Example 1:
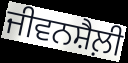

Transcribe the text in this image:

ਜੀਵਨਸ਼ੈਲ਼ੀ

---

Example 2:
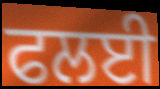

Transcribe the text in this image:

ਫਲਈ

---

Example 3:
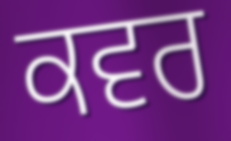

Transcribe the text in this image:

ਕਵਰ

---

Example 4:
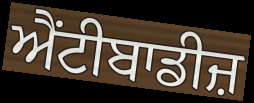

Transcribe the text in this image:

ਐਂਟੀਬਾਡੀਜ਼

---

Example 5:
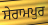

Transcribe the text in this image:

ਸੇਰਾਮਪੁਰ